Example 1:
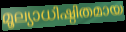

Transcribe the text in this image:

മൂല്യാധിഷ്ഠിതമായ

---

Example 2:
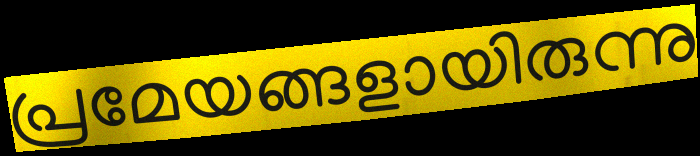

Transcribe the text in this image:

പ്രമേയങ്ങളായിരുന്നു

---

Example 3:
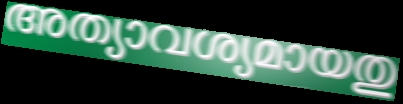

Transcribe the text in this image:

അത്യാവശ്യമായതു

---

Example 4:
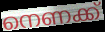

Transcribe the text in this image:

നെണക്ക്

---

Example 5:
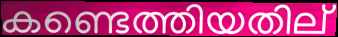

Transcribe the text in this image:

കണ്ടെത്തിയതില്